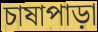
চাষাপাড়া